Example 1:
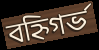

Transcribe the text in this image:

বহ্নিগর্ভ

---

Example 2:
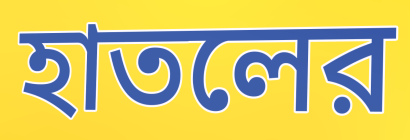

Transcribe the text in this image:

হাতলের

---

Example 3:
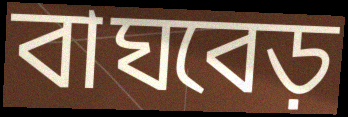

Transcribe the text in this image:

বাঘবেড়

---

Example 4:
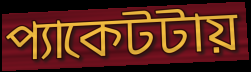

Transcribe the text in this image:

প্যাকেটটায়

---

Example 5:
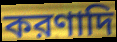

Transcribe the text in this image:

করণাদি